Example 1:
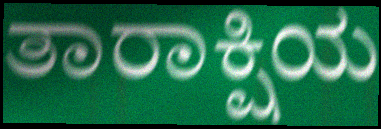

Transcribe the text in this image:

ತಾರಾಕ್ಷಿಯ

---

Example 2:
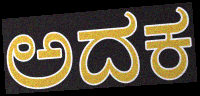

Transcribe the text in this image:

ಅದಕ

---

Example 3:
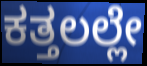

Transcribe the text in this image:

ಕತ್ತಲಲ್ಲೇ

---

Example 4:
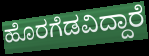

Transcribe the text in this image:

ಹೊರಗೆಡವಿದ್ದಾರೆ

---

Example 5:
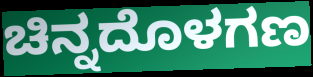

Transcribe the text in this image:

ಚಿನ್ನದೊಳಗಣ